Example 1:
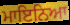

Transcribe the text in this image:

ਮਾਇਨਿਆ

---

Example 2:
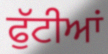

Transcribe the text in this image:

ਫੁੱਟੀਆਂ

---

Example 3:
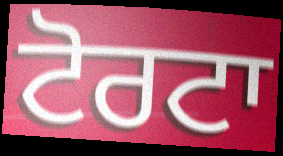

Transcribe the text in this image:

ਟੋਰਟਾ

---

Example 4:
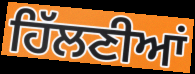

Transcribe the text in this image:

ਹਿੱਲਣੀਆਂ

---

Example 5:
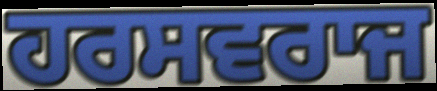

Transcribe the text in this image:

ਹਰਸਵਰਾਜ